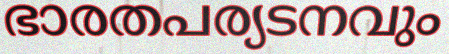
ഭാരതപര്യടനവും